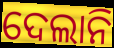
ଦେଲାନି